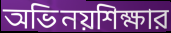
অভিনয়শিক্ষার